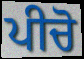
ਪੀਚੋ